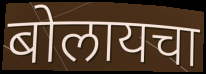
बोलायचा